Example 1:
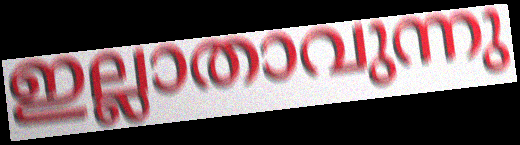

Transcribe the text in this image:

ഇല്ലാതാവുന്നു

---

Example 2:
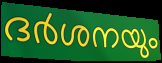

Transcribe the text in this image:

ദർശനയും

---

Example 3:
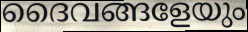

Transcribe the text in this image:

ദൈവങ്ങളേയും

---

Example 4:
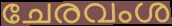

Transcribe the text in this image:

ചേരവംശ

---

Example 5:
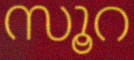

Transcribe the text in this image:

സൂറ